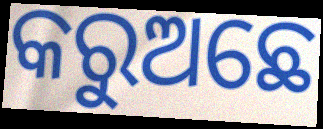
କରୁଅଛେ